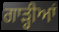
ਗਾੜ੍ਹੀਆਂ